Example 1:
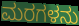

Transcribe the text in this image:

ಮರಗಳನು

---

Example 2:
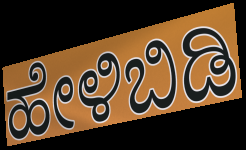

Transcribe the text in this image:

ಹೇಳಿಬಿಡಿ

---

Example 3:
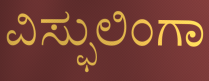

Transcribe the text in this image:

ವಿಸ್ಫುಲಿಂಗಾ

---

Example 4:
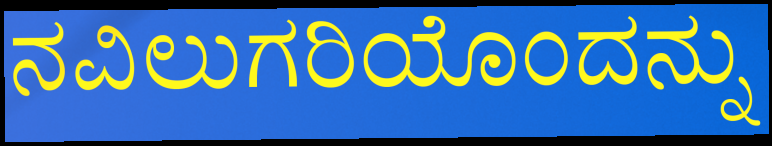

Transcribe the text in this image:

ನವಿಲುಗರಿಯೊಂದನ್ನು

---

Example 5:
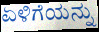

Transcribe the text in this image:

ಏಳಿಗೆಯನ್ನು